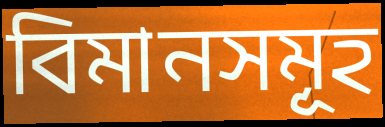
বিমানসমূহ